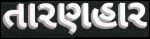
તારણહાર